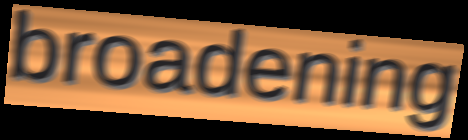
broadening